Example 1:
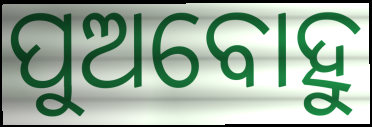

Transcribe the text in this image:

ପୁଅବୋହୁ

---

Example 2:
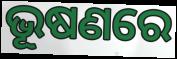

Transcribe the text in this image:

ଭୂଷଣରେ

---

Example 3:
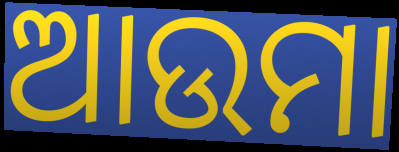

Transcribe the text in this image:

ଆଉମା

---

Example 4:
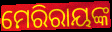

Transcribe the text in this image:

ମେରିରାୟଙ୍କ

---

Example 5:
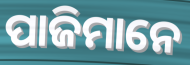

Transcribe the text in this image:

ପାଜିମାନେ